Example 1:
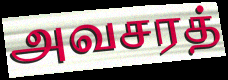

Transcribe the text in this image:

அவசரத்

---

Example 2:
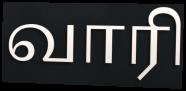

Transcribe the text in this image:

வாரி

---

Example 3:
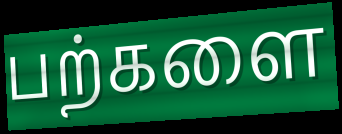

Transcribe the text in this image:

பற்களை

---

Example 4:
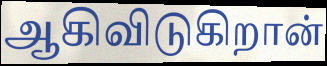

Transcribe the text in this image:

ஆகிவிடுகிறான்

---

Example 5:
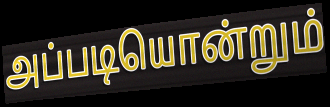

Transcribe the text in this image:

அப்படியொன்றும்